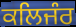
ਕਲਿਜੰਰ